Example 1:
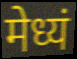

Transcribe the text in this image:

मेध्यं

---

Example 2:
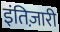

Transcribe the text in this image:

इंतिज़ारी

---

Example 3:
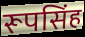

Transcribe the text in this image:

रूपसिंह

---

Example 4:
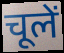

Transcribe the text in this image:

चूलें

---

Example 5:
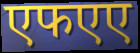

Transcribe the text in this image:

एफएए